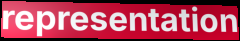
representation